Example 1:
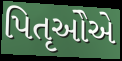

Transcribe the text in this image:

પિતૃઓેએ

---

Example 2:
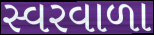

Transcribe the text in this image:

સ્વરવાળા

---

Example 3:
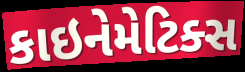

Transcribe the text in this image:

કાઇનેમેટિક્સ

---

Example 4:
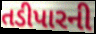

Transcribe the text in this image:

તડીપારની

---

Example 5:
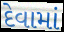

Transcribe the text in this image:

દેવામાં